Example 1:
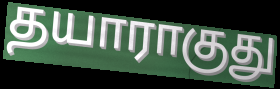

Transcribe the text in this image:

தயாராகுது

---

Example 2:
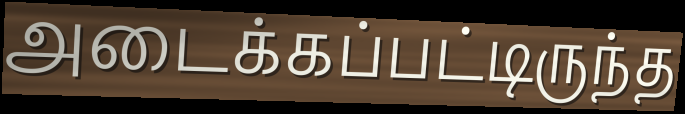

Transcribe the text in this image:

அடைக்கப்பட்டிருந்த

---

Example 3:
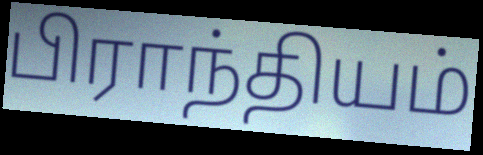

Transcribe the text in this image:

பிராந்தியம்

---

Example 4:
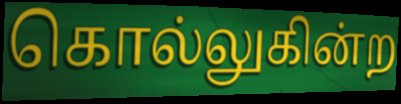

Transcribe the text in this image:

கொல்லுகின்ற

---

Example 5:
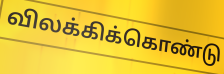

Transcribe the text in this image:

விலக்கிக்கொண்டு